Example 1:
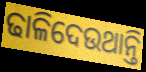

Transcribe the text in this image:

ଢାଳିଦେଉଥାନ୍ତି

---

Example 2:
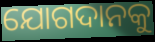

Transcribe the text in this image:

ଯୋଗଦାନକୁ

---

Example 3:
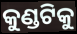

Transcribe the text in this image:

କୁଣ୍ଡଟିକୁ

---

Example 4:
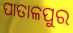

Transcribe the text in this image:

ପାତାଳପୁର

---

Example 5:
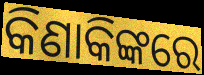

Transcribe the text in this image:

କିଣାକିଙ୍କରେ